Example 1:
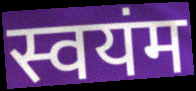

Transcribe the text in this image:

स्वयंम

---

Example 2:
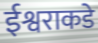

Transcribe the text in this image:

ईश्वराकडे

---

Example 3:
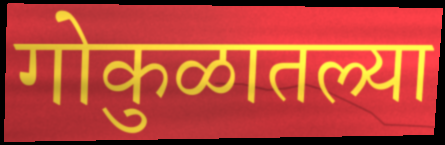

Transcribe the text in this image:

गोकुळातल्या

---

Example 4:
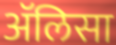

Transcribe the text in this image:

ॲलिसा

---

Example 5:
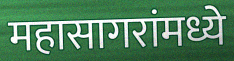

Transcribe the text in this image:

महासागरांमध्ये